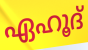
ഏഹൂദ്